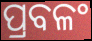
ପ୍ରବଳଂ